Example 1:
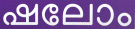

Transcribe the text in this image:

ഷലോം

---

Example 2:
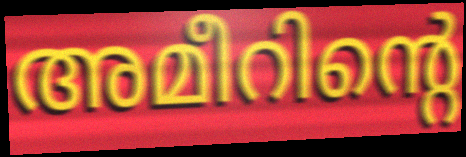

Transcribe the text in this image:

അമീറിന്റെ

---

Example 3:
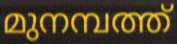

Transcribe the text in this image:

മുനമ്പത്ത്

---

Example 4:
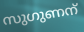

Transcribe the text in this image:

സുഗുണന്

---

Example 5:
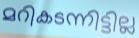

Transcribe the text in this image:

മറികടന്നിട്ടില്ല